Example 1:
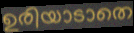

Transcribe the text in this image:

ഉരിയാടാതെ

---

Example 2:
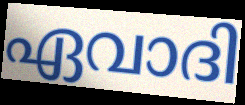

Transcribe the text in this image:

ഏവാദി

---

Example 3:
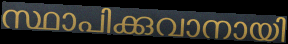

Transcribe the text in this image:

സ്ഥാപിക്കുവാനായി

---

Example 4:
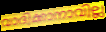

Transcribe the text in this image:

വാദിക്കാനാവില്ല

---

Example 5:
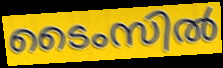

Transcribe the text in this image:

ടൈംസിൽ